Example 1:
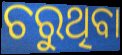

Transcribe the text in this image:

ଚରୁଥିବା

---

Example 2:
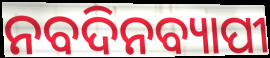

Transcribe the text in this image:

ନବଦିନବ୍ୟାପୀ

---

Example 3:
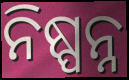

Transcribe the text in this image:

ନିଷ୍ପନ୍ନ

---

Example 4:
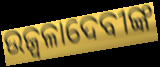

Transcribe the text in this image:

ଉଜ୍ୱଳାଦେବୀଙ୍କ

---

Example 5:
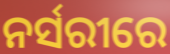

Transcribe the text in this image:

ନର୍ସରୀରେ